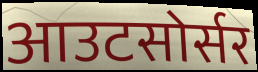
आउटसोर्सर